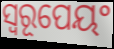
ସ୍ୱରୂପେୟଂ